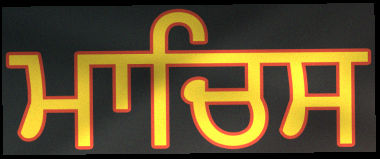
ਮਾਚਿਸ